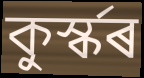
কুৰ্স্কৰ